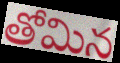
తోమిన